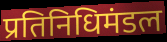
प्रतिनिधिमंडल